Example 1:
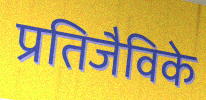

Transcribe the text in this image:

प्रतिजैविके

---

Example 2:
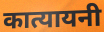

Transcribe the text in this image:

कात्यायनी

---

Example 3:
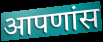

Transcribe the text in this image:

आपणांस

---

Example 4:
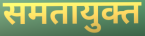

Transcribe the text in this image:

समतायुक्त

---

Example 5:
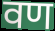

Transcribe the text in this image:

वण